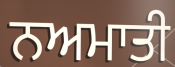
ਨਅਮਾਤੀ